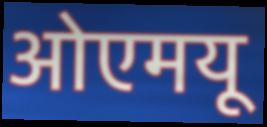
ओएमयू